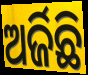
ଅର୍ଜିଛି